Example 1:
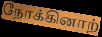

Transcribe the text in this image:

நோக்கினாற்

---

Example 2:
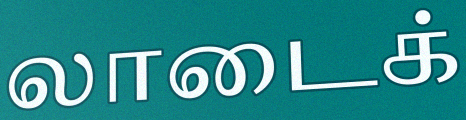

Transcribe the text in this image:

லாடைக்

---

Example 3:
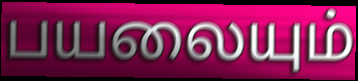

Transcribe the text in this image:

பயலையும்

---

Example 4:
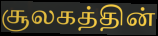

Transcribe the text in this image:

சூலகத்தின்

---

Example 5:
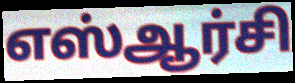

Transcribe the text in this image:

எஸ்ஆர்சி